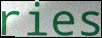
ries